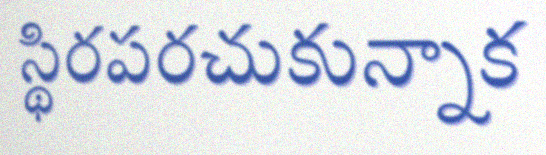
స్థిరపరచుకున్నాక